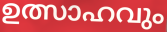
ഉത്സാഹവും